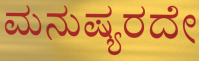
ಮನುಷ್ಯರದೇ